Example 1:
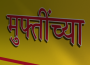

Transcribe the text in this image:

मुफ्तींच्या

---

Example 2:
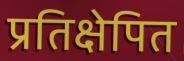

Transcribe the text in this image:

प्रतिक्षेपित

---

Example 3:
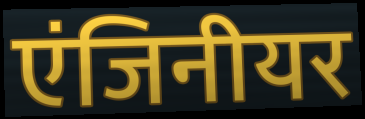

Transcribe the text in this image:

एंजिनीयर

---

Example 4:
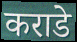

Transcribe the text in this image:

कराडे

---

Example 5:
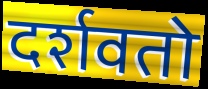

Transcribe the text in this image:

दर्शवतो